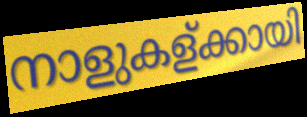
നാളുകള്ക്കായി